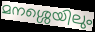
മനശ്ശെയിലും